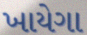
ખાયેગા